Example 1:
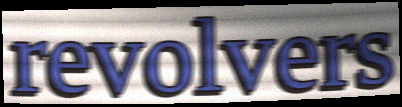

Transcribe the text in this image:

revolvers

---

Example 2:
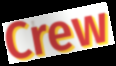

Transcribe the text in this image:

Crew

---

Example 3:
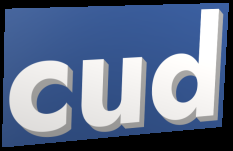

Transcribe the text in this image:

cud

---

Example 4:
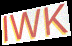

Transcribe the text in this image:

IWK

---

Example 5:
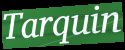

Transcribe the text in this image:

Tarquin